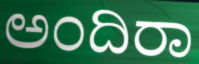
ಅಂದಿರಾ